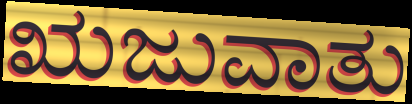
ಋಜುವಾತು